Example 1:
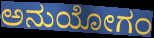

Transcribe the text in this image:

ಅನುಯೋಗಂ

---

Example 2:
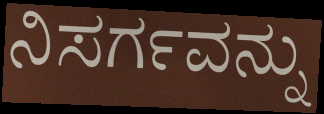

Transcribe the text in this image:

ನಿಸರ್ಗವನ್ನು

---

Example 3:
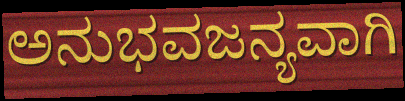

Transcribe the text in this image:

ಅನುಭವಜನ್ಯವಾಗಿ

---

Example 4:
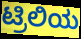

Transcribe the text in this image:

ಟ್ರಿಲಿಯ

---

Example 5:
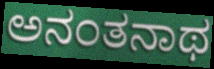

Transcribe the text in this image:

ಅನಂತನಾಥ